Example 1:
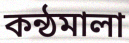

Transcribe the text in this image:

কন্ঠমালা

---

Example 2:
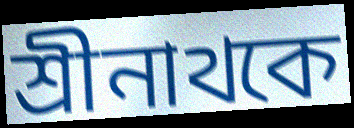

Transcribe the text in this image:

শ্রীনাথকে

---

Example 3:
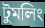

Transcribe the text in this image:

টুমলিং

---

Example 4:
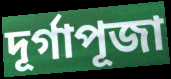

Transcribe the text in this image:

দূর্গাপূজা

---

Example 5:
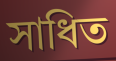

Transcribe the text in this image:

সাধিত